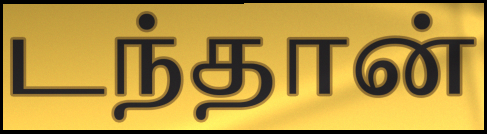
டந்தான்